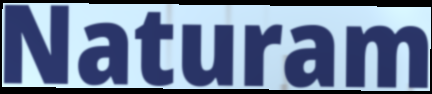
Naturam